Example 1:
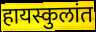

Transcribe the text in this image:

हायस्कुलांत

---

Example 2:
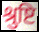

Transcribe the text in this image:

श्रुष्टि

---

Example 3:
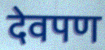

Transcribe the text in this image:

देवपण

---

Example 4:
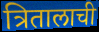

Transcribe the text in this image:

त्रितालाची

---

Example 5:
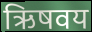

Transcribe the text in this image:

ऋिषवय